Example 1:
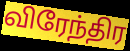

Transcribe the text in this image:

விரேந்திர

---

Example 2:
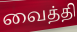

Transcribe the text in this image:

வைத்தி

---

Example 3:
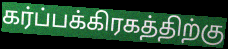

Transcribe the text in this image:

கர்ப்பக்கிரகத்திற்கு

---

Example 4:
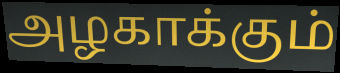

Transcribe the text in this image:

அழகாக்கும்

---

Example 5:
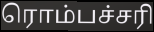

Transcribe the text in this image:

ரொம்பச்சரி